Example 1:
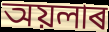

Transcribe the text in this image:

অয়লাৰ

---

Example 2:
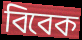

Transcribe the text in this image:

বিবেক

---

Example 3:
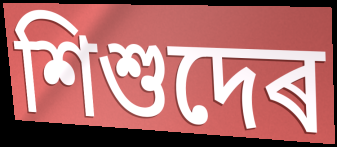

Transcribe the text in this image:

শিশুদেৰ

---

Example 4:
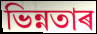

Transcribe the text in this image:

ভিন্নতাৰ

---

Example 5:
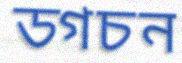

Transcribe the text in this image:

ডগচন